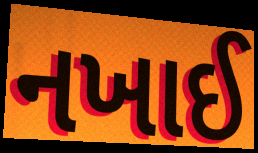
નખાઈ